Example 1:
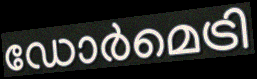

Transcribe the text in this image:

ഡോർമെട്രി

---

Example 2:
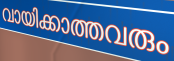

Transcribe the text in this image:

വായിക്കാത്തവരും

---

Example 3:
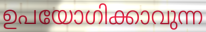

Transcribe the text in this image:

ഉപയോഗിക്കാവുന്ന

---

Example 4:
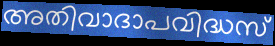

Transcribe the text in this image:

അതിവാദാപവിദ്ധസ്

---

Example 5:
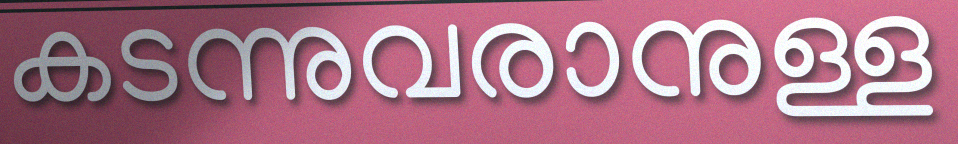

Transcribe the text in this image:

കടന്നുവരാനുള്ള